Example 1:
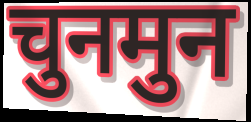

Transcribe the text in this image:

चुनमुन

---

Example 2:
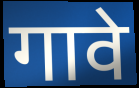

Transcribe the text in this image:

गावे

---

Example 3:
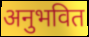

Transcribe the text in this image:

अनुभवित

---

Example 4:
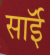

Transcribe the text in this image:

साईॅ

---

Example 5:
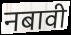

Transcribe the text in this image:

नबावी